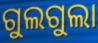
ଗୁଲଗୁଲା